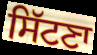
ਸਿੱਟਣਾ